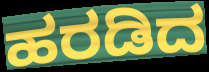
ಹರಡಿದ